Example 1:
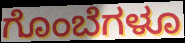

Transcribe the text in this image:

ಗೊಂಬೆಗಳೂ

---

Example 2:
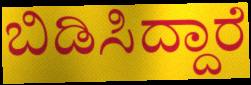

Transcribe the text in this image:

ಬಿಡಿಸಿದ್ದಾರೆ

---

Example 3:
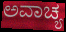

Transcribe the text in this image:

ಅವಾಚ್ಯ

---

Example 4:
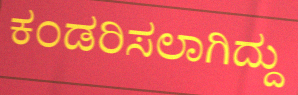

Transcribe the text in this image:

ಕಂಡರಿಸಲಾಗಿದ್ದು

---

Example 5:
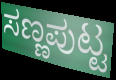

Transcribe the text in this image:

ಸಣ್ಣಪುಟ್ಟ